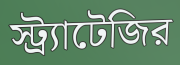
স্ট্র্যাটেজির